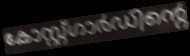
കോസ്റ്റ്ഗാർഡിന്റെ